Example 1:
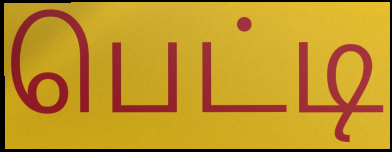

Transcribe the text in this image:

பெட்டி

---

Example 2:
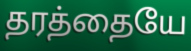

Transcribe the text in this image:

தரத்தையே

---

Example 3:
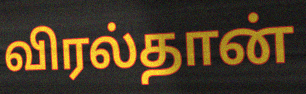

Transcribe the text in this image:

விரல்தான்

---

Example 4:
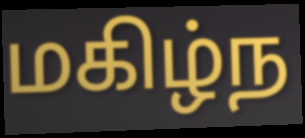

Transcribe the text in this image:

மகிழ்ந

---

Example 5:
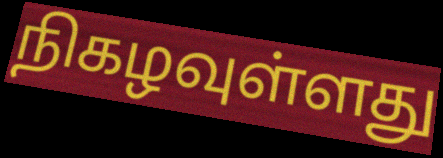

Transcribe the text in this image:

நிகழவுள்ளது